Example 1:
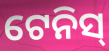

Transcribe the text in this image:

ଟେନିସ୍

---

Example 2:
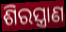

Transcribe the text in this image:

ଶିରସ୍ତ୍ରାଣ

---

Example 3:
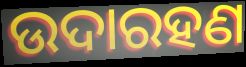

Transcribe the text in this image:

ଉଦାରହଣ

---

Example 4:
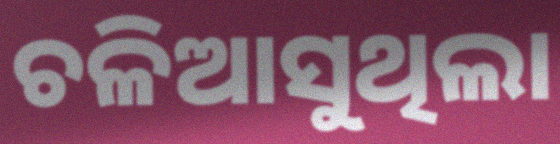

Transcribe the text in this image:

ଚଳିଆସୁଥିଲା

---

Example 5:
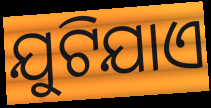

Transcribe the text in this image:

ଯୁଟିଯାଏ